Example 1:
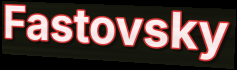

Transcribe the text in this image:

Fastovsky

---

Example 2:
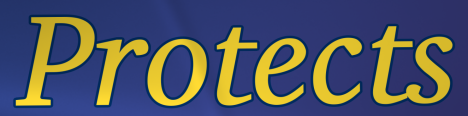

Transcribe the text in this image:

Protects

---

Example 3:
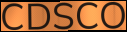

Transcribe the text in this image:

CDSCO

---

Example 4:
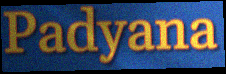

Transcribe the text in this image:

Padyana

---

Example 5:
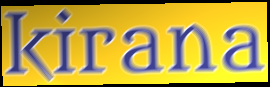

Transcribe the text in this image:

kirana